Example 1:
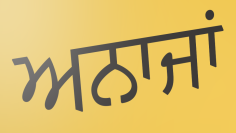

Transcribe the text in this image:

ਅਨਾਜਾਂ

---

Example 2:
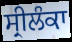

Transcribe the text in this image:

ਸ੍ਰੀਲੰਕਾ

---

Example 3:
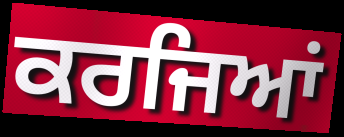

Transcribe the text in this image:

ਕਰਜਿਆਂ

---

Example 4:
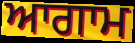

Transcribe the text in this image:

ਆਗਾਮ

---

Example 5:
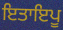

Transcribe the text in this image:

ਇਤਾਇਪੂ